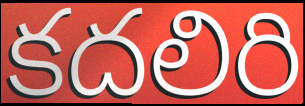
కదలిరి